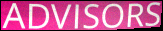
ADVISORS